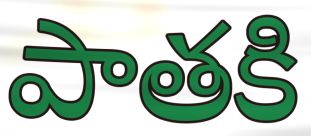
పాతకి